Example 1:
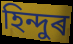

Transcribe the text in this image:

হিন্দুৰ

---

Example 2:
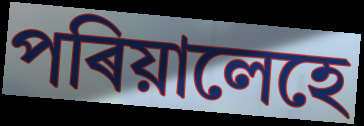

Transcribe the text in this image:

পৰিয়ালেহে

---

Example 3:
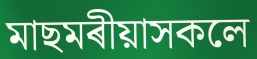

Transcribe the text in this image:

মাছমৰীয়াসকলে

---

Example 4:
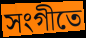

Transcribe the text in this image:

সংগীতে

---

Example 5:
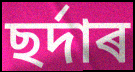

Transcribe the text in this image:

ছৰ্দাৰ